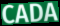
CADA